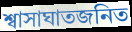
শ্বাসাঘাতজনিত